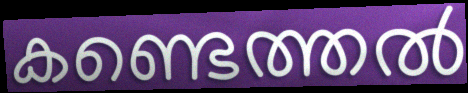
കണ്ടെത്തൽ